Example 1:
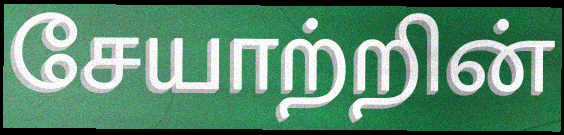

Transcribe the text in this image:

சேயாற்றின்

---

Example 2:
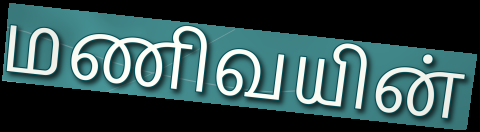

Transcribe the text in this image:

மணிவயின்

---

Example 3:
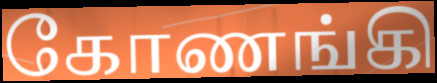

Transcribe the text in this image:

கோணங்கி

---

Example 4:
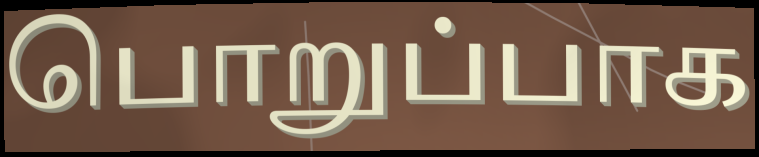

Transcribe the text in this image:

பொறுப்பாக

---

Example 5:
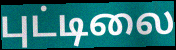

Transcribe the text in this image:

புட்டிலை